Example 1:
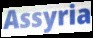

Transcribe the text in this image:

Assyria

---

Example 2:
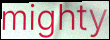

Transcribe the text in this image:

mighty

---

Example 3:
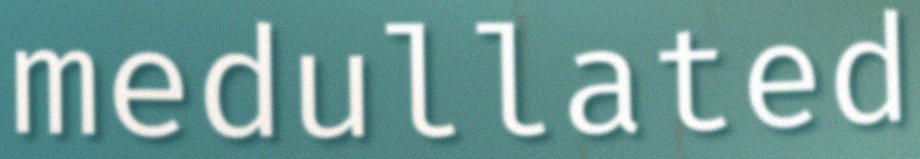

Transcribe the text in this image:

medullated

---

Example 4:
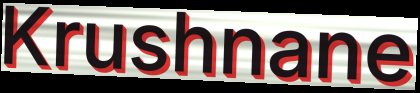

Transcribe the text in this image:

Krushnane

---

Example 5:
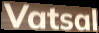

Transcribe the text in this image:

Vatsal